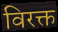
विरक्त